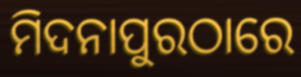
ମିଦନାପୁରଠାରେ